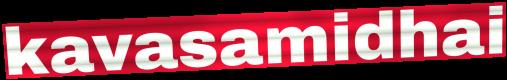
kavasamidhai